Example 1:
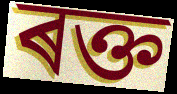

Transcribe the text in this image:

ৰক্ত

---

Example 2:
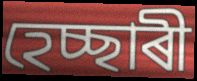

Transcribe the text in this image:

হেচ্ছাৰী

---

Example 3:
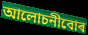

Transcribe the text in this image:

আলোচনীবোৰ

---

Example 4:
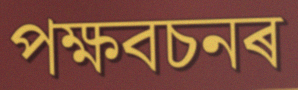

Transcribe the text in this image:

পক্ষবচনৰ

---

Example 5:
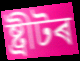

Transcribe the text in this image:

ষ্ট্ৰীটৰ